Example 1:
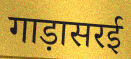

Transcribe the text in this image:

गाड़ासरई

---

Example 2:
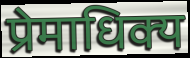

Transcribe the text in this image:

प्रेमाधिक्य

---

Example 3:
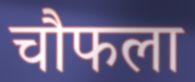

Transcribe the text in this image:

चौफला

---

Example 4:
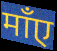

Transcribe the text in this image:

माँए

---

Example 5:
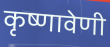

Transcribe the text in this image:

कृष्णावेणी